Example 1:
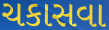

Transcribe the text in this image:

ચકાસવા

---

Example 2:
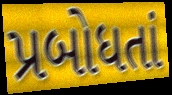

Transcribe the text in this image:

પ્રબોધતાં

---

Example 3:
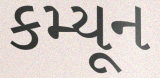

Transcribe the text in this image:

કમ્યૂન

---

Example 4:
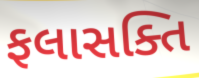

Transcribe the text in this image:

ફલાસક્તિ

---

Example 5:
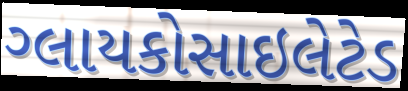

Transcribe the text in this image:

ગ્લાયકોસાઇલેટેડ